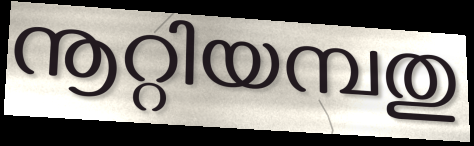
നൂറ്റിയമ്പതു